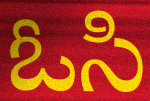
ఓసి